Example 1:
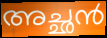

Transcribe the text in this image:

അച്ഛൻ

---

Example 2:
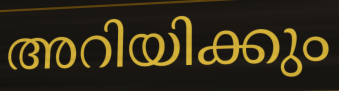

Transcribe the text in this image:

അറിയിക്കും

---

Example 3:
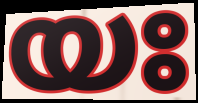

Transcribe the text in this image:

യഃ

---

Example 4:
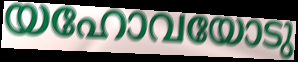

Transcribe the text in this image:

യഹോവയോടു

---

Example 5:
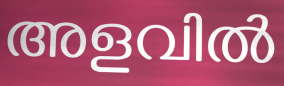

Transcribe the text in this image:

അളവിൽ